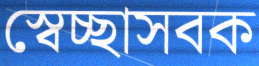
স্বেচ্ছাসবক